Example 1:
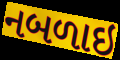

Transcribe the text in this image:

નબળાઇ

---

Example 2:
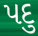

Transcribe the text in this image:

પદુ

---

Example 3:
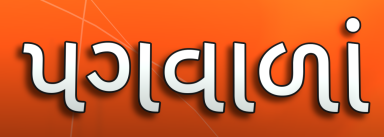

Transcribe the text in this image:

પગવાળાં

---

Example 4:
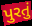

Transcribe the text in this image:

પુરતું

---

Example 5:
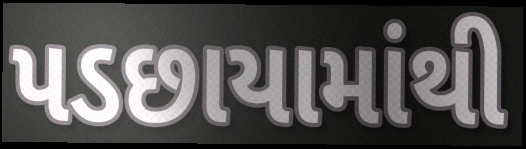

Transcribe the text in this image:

પડછાયામાંથી